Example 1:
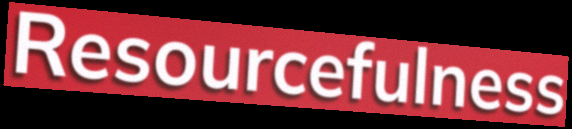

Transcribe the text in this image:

Resourcefulness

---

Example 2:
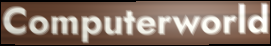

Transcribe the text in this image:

Computerworld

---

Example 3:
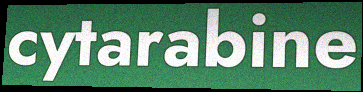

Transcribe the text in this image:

cytarabine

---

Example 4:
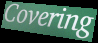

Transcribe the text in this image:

Covering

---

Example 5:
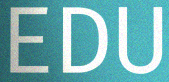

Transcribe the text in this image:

EDU